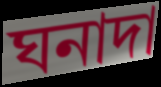
ঘনাদা